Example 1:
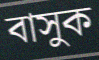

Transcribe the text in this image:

বাসুক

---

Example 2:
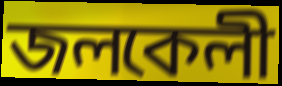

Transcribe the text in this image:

জলকেলী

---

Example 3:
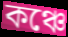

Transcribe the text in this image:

কঞ্চে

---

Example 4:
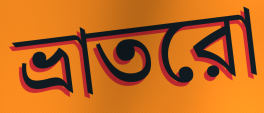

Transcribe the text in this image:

ভ্রাতরো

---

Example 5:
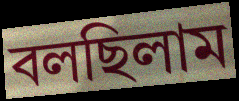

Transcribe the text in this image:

বলছিলাম